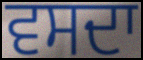
ਵਸਦਾ